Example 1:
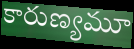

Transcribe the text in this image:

కారుణ్యమూ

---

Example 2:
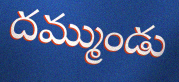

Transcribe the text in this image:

దమ్ముండు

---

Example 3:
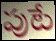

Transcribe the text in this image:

పుటే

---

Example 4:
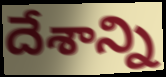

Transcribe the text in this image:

దేశాన్ని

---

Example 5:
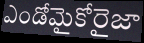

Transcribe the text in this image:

ఎండోమైకోరైజా